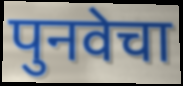
पुनवेचा